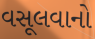
વસૂલવાનો